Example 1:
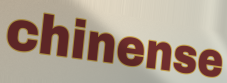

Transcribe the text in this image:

chinense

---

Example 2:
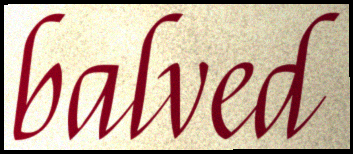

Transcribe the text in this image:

balved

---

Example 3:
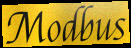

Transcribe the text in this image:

Modbus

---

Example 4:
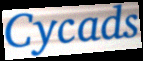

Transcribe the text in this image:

Cycads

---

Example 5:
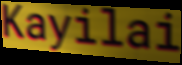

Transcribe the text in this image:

Kayilai